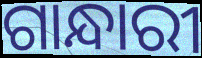
ଗାନ୍ଧାରୀ